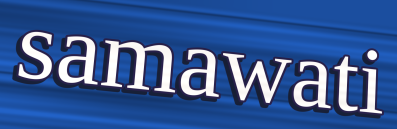
samawati